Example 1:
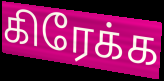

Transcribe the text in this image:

கிரேக்க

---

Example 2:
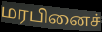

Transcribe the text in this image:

மரபினைச்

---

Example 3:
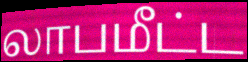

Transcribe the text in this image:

லாபமீட்ட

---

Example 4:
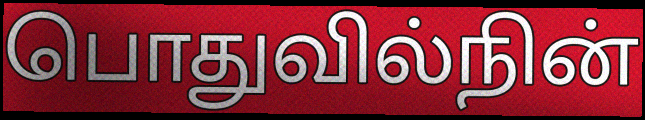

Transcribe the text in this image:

பொதுவில்நின்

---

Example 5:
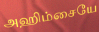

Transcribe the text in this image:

அஹிம்சையே